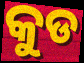
କୁଡ